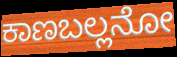
ಕಾಣಬಲ್ಲನೋ